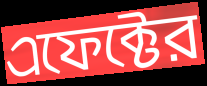
এফেক্টের